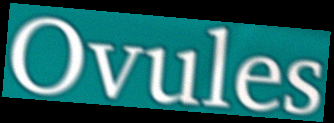
Ovules